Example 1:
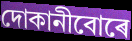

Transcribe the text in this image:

দোকানীবোৰে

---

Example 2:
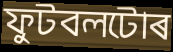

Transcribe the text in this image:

ফুটবলটোৰ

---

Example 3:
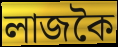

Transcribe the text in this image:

লাজকৈ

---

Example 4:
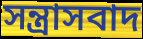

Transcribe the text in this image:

সন্ত্ৰাসবাদ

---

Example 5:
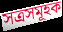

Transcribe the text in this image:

সত্ৰসমূহক